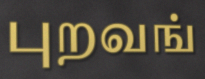
புறவங்